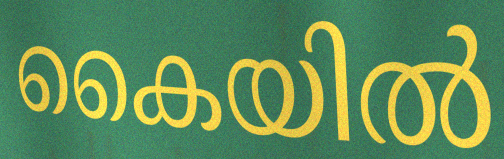
കൈയിൽ